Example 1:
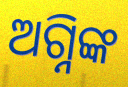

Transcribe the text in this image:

ଅଗ୍ନିଙ୍କ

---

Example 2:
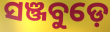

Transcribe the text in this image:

ସଞ୍ଜବୁଡ଼େ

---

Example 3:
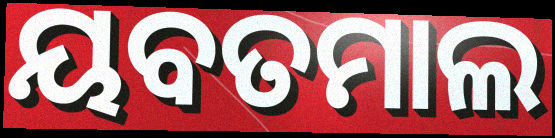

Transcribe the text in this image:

ୟବତମାଲ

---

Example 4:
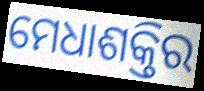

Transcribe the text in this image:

ମେଧାଶକ୍ତିର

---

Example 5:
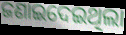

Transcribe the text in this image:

ଜଣାଇଦେଇଥିଲା